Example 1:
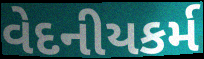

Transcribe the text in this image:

વેદનીયકર્મ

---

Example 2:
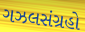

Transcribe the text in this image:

ગઝલસંગ્રહો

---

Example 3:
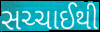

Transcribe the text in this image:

સચ્ચાઈથી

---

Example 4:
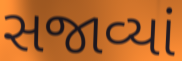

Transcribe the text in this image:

સજાવ્યાં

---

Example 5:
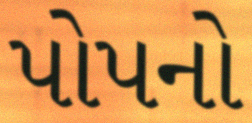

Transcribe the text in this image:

પોપનો